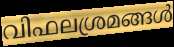
വിഫലശ്രമങ്ങൾ